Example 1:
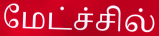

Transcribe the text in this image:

மேட்ச்சில்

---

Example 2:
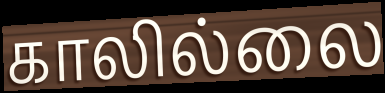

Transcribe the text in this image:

காலில்லை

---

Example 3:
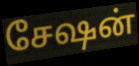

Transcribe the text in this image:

சேஷன்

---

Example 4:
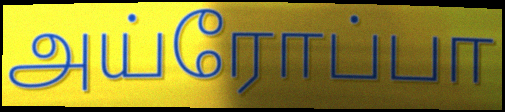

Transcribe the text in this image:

அய்ரோப்பா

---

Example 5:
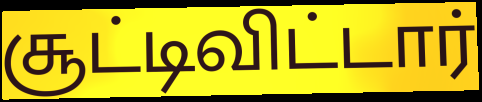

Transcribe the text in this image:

சூட்டிவிட்டார்